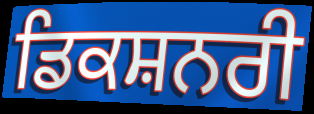
ਡਿਕਸ਼ਨਰੀ